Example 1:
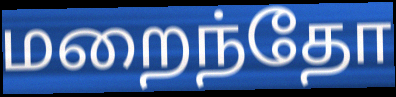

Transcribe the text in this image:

மறைந்தோ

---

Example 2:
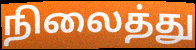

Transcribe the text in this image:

நிலைத்து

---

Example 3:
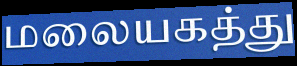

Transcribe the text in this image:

மலையகத்து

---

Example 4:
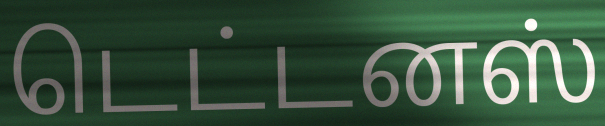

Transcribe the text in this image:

டெட்டனஸ்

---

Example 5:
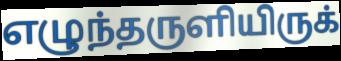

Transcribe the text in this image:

எழுந்தருளியிருக்